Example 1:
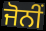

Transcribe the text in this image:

ਜੋਨੀਂ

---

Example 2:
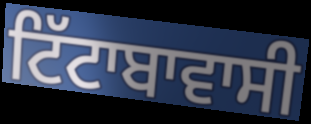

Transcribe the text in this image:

ਟਿੱਟਾਬਾਵਾਸੀ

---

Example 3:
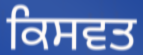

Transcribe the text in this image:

ਕਿਸਵਤ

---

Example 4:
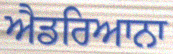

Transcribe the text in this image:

ਐਡਰਿਆਨਾ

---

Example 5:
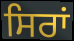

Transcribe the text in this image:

ਸਿਰਾਂ